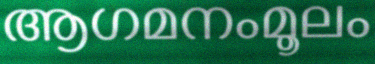
ആഗമനംമൂലം